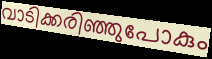
വാടിക്കരിഞ്ഞുപോകും